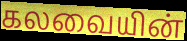
கலவையின்